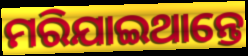
ମରିଯାଇଥାନ୍ତେ